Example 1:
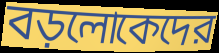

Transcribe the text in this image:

বড়লোকেদের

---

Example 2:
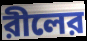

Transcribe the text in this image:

রীলের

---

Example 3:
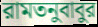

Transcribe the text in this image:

রামতনুবাবুর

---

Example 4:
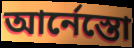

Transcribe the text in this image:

আর্নেস্তো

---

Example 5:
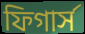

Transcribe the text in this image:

ফিগার্স